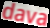
dava